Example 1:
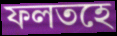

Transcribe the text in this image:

ফলতহে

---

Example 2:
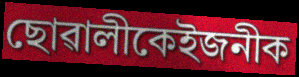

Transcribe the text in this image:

ছোৱালীকেইজনীক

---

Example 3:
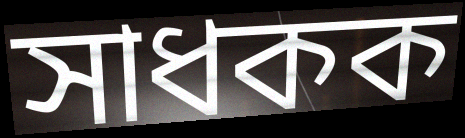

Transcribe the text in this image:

সাধকক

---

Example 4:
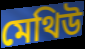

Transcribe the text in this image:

মেথিউ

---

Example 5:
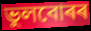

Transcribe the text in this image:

ভুলবোৰৰ